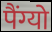
पैंग्यो